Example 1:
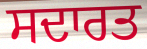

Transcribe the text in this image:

ਸਦਾਰਤ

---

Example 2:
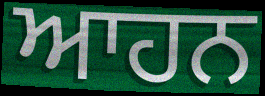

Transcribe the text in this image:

ਆਹਨ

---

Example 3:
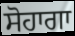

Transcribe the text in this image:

ਸੋਹਾਗਾ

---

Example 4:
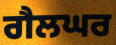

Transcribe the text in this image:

ਗੈਲਘਰ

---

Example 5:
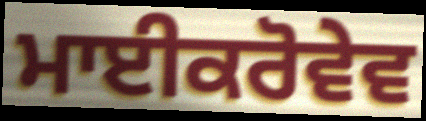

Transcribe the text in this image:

ਮਾਈਕਰੋਵੇਵ